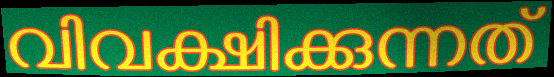
വിവക്ഷിക്കുന്നത്